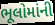
ભૂલોમાંની